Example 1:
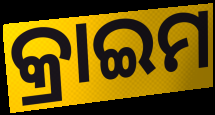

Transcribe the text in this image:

କ୍ରାଇମ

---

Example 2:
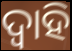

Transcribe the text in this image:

ଦ୍ୱାହି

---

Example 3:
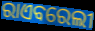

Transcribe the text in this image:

ରାଏବରେଲୀ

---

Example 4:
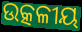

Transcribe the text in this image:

ଉତ୍କଳୀୟ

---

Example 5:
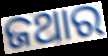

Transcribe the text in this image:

ଜଥାର